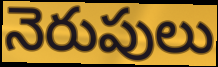
నెరుపులు